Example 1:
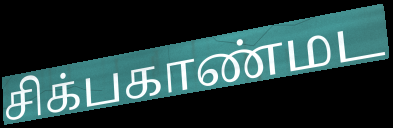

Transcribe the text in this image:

சிக்பகாண்மட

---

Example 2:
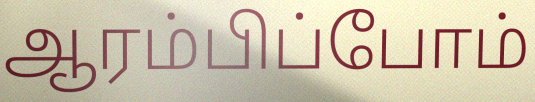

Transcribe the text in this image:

ஆரம்பிப்போம்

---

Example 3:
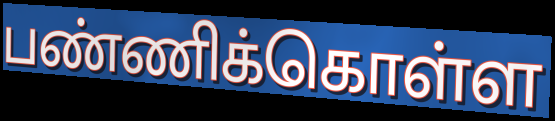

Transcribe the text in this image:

பண்ணிக்கொள்ள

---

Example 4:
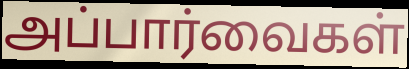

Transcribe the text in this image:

அப்பார்வைகள்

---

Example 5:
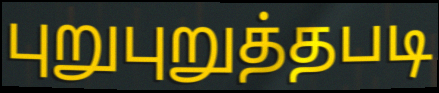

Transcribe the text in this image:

புறுபுறுத்தபடி